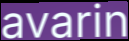
avarin